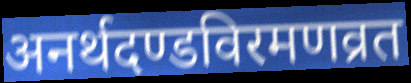
अनर्थदण्डविरमणव्रत